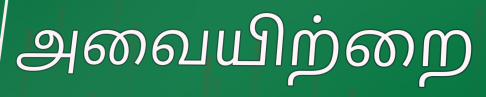
அவையிற்றை